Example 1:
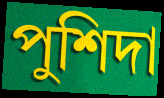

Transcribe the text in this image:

পুশিদা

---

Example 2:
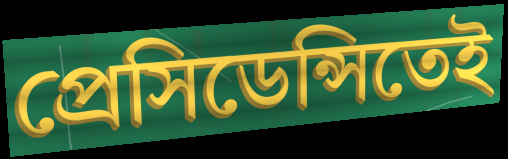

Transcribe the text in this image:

প্রেসিডেন্সিতেই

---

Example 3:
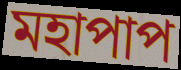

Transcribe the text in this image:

মহাপাপ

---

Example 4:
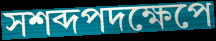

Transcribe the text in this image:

সশব্দপদক্ষেপে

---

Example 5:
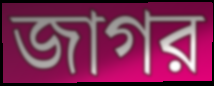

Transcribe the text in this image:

জাগর